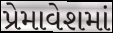
પ્રેમાવેશમાં